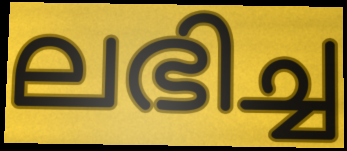
ലഭിച്ച